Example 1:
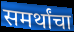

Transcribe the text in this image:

समर्थांचा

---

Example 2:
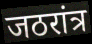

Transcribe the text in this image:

जठरांत्र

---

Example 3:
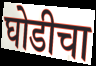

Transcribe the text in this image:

घोडीचा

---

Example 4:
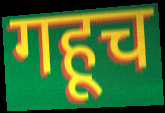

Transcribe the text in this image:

गहूच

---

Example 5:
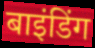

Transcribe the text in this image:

बाइंडिंग